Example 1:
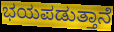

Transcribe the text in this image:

ಭಯಪಡುತ್ತಾನೆ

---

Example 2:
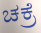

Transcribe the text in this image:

ಚಕ್ರೆ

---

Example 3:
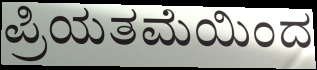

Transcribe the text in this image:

ಪ್ರಿಯತಮೆಯಿಂದ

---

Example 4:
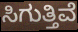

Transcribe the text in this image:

ಸಿಗುತ್ತಿವೆ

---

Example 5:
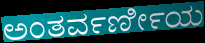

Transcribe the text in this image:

ಅಂತರ್ವರ್ಣೀಯ